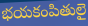
భయకంపితులై